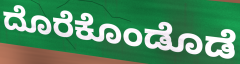
ದೊರೆಕೊಂಡೊಡೆ